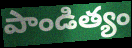
పాండిత్యం